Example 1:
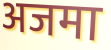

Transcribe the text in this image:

अजमा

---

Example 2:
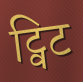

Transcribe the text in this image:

ट्विट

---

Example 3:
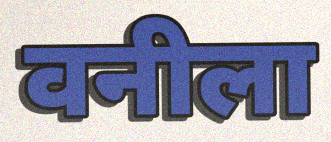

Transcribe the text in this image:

वनीला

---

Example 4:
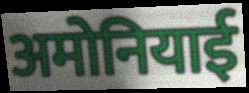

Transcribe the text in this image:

अमोनियाई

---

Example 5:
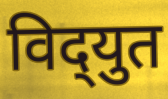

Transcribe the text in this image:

विद्‌युत